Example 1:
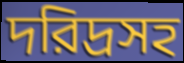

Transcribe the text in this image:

দরিদ্রসহ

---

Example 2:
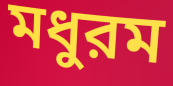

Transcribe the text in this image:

মধুরম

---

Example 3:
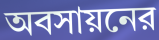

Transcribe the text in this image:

অবসায়নের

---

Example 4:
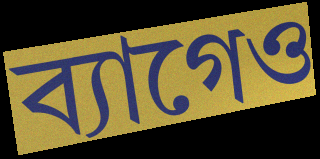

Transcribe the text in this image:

ব্যাগেও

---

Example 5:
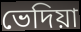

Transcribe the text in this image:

ভেদিয়া